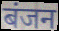
बंजन